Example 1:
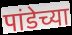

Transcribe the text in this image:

पांडेच्या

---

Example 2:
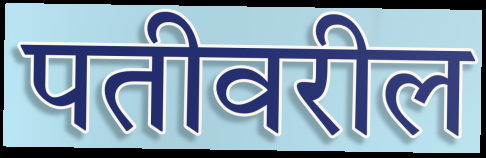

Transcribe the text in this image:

पतीवरील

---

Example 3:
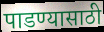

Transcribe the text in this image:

पाडण्यासाठी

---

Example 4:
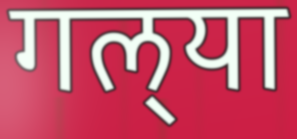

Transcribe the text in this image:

गल्या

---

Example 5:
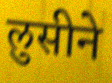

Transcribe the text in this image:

लुसीने